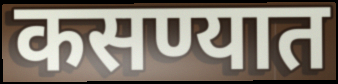
कसण्यात